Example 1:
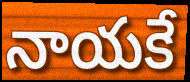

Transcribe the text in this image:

నాయకే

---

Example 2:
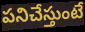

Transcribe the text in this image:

పనిచేస్తుంటే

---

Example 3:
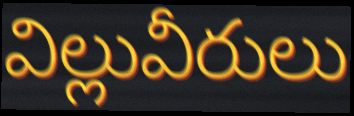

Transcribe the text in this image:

విల్లువీరులు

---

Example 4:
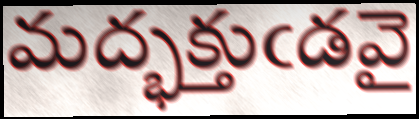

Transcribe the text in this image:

మద్భక్తుఁడవై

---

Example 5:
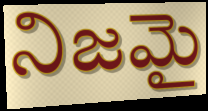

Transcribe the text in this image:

నిజమై